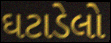
ઘટાડેલો